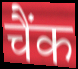
चैंक